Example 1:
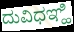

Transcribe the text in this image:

ದುವಿಧಞ್ಹಿ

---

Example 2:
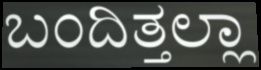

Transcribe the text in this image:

ಬಂದಿತ್ತಲ್ಲಾ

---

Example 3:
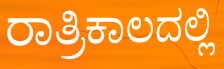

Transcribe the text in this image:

ರಾತ್ರಿಕಾಲದಲ್ಲಿ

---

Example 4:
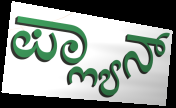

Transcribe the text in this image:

ಪ್ಲ್ಯಾನ್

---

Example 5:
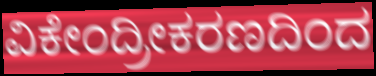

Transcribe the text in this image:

ವಿಕೇಂದ್ರೀಕರಣದಿಂದ